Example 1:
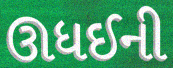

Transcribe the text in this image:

ઊધઈની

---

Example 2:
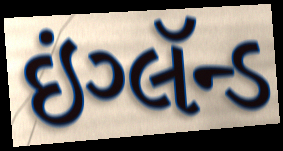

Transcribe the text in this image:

ઇંગ્લૅન્ડ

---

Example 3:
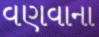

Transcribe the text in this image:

વણવાના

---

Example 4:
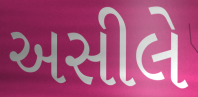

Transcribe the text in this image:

અસીલે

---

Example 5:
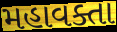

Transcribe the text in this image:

મહાવક્તા